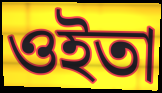
ওইতা